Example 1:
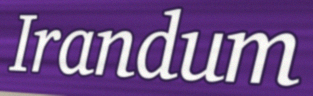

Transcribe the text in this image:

Irandum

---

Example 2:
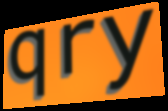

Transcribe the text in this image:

qry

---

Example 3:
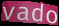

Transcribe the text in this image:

vado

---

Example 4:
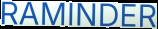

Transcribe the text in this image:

RAMINDER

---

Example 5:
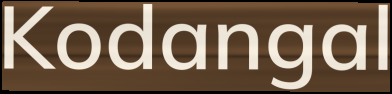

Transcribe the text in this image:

Kodangal